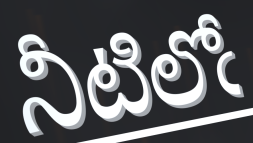
నీటిలోఁ